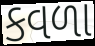
કવળા